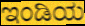
ಇಂಡಿಯ